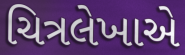
ચિત્રલેખાએ